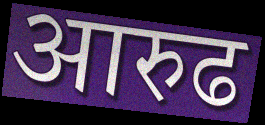
आरुढ